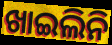
ଖାଇଲିନି